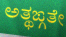
ಅತ್ಥಙ್ಗತೇ